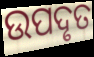
ଉପଦୃତ